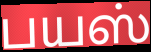
பயஸ்